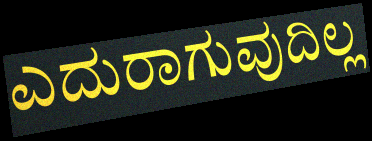
ಎದುರಾಗುವುದಿಲ್ಲ